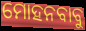
ମୋହନବାବୁ